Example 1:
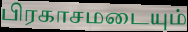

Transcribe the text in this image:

பிரகாசமடையும்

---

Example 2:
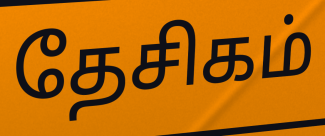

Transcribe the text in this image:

தேசிகம்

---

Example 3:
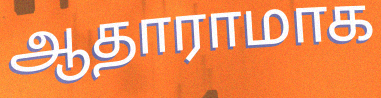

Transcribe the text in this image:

ஆதாராமாக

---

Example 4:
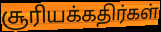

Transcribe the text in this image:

சூரியக்கதிர்கள்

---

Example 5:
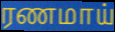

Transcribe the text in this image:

ரணமாய்